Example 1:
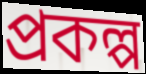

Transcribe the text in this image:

প্ৰকল্প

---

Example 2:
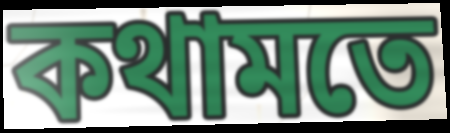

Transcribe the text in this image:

কথামতে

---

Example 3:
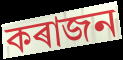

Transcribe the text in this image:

কৰাজন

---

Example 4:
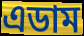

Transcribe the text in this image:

এডাম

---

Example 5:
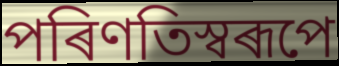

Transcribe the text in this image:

পৰিণতিস্বৰূপে